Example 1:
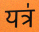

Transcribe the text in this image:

यत्र॑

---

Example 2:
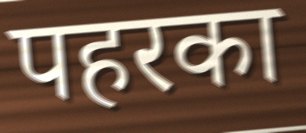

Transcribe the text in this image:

पहरका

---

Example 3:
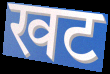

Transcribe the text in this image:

खट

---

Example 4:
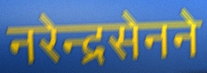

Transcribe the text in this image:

नरेन्द्रसेनने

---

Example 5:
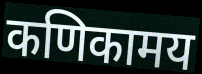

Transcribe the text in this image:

कणिकामय